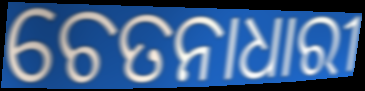
ଚେତନାଧାରୀ